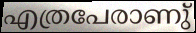
എത്രപേരാണു്